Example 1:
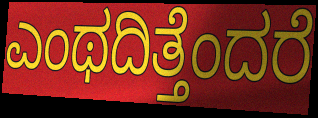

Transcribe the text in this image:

ಎಂಥದಿತ್ತೆಂದರೆ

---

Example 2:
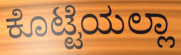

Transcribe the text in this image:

ಕೊಟ್ಟೆಯಲ್ಲಾ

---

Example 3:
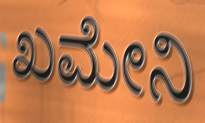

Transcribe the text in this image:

ಖಮೇನಿ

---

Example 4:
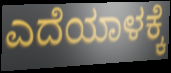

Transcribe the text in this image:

ಎದೆಯಾಳಕ್ಕೆ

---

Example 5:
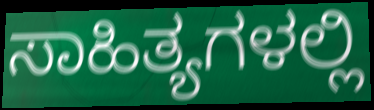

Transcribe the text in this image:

ಸಾಹಿತ್ಯಗಳಲ್ಲಿ